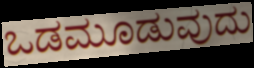
ಒಡಮೂಡುವುದು